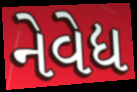
નેવેદ્ય